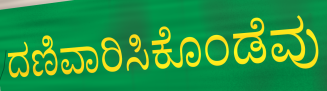
ದಣಿವಾರಿಸಿಕೊಂಡೆವು